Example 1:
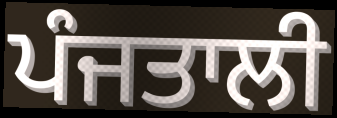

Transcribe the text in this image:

ਪੰਜਤਾਲੀ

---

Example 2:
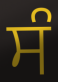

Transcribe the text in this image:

ਸੰ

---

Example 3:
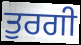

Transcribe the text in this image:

ਤੁਰਗੀ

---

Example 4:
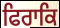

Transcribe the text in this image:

ਫਿਰਾਕਿ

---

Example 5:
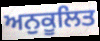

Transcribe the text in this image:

ਅਨੁਕੂਲਿਤ